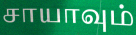
சாயாவும்